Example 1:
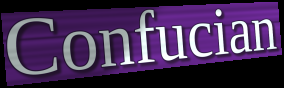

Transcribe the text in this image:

Confucian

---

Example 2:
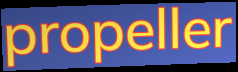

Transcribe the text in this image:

propeller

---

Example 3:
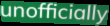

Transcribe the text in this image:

unofficially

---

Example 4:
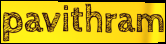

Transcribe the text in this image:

pavithram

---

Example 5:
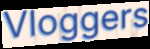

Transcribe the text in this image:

Vloggers